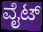
ವೈಟ್